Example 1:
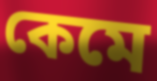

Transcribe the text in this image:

কেমে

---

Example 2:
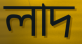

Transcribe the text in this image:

লাদ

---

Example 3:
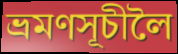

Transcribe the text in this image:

ভ্ৰমণসূচীলৈ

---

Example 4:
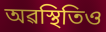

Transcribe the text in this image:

অৱস্থিতিও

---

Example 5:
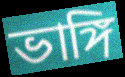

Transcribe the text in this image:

ভাঙ্গি